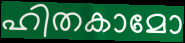
ഹിതകാമോ